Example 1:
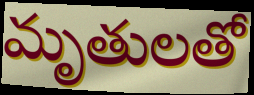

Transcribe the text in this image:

మృతులతో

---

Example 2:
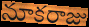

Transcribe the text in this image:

నూకరాజు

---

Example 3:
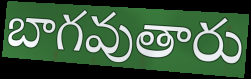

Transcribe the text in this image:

బాగవుతారు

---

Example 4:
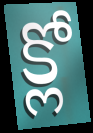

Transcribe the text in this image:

క్లో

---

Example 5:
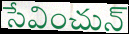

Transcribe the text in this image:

సేవించున్